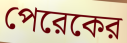
পেরেকের